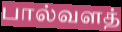
பால்வளத்